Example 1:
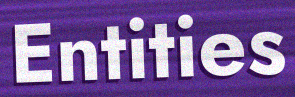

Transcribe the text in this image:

Entities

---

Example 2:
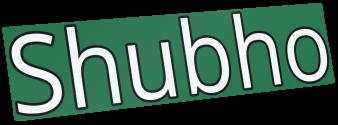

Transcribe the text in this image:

Shubho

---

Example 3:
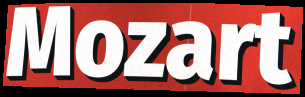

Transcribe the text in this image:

Mozart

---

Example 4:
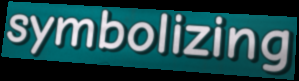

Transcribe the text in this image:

symbolizing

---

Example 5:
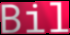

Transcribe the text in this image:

Bil